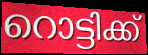
റൊട്ടിക്ക്